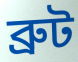
ব্রুট